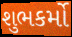
શુભકર્મો